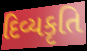
દિવ્યકૃતિ